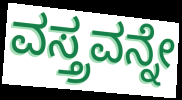
ವಸ್ತ್ರವನ್ನೇ